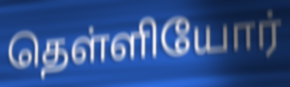
தெள்ளியோர்